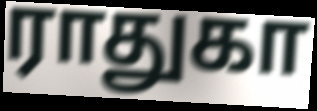
ராதுகா